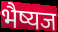
भैष्यज